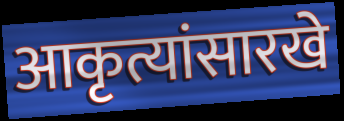
आकृत्यांसारखे